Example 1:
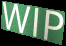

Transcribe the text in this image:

WIP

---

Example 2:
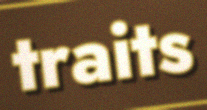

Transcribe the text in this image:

traits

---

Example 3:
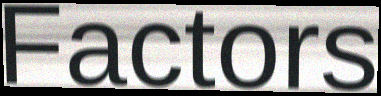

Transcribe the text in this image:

Factors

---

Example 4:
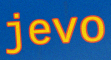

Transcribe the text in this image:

jevo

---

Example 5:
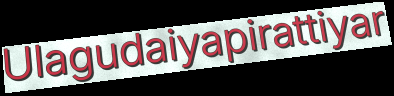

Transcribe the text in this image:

Ulagudaiyapirattiyar